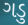
ગડુ